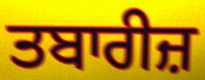
ਤਬਾਰੀਜ਼